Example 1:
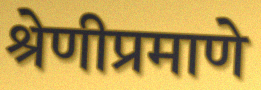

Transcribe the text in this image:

श्रेणीप्रमाणे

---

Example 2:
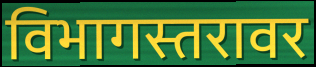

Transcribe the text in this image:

विभागस्तरावर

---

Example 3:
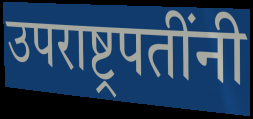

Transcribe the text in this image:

उपराष्ट्रपतींनी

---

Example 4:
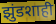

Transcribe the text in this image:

झुंडशाही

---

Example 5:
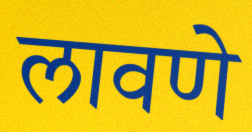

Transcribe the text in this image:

लावणे